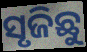
ସୃଜିଛୁ